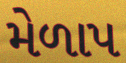
મેળાપ